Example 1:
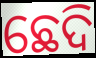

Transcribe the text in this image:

ଛେଦି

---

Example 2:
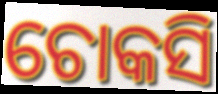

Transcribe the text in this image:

ଚୋକସି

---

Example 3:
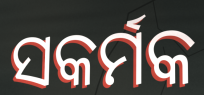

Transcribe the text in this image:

ସକର୍ମକ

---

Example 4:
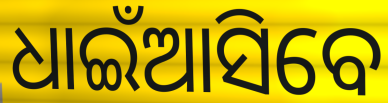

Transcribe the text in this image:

ଧାଇଁଆସିବେ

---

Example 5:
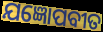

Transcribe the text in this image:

ଯଜ୍ଞୋପବୀତ